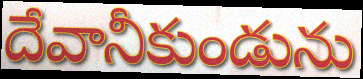
దేవానీకుండును